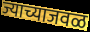
ज्याच्याजवळ